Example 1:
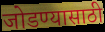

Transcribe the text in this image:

जोडण्यासाठी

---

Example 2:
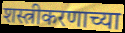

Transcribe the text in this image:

शस्त्रीकरणाच्या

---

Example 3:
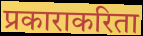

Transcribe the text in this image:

प्रकाराकरिता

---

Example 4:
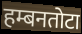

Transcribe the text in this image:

हम्बनतोटा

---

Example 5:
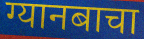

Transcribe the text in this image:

ग्यानबाचा